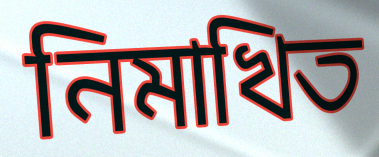
নিমাখিত